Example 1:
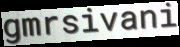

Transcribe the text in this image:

gmrsivani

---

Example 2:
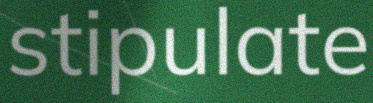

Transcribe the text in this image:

stipulate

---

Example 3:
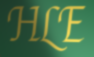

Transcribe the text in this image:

HLE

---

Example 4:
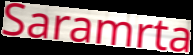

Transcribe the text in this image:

Saramrta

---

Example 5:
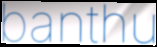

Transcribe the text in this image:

banthu